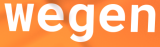
wegen